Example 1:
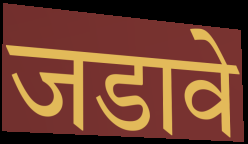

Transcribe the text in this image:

जडावे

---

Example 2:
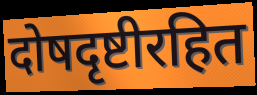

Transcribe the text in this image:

दोषदृष्टीरहित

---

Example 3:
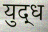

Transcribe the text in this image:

युद्ध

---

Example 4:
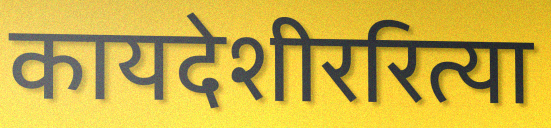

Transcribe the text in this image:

कायदेशीररित्या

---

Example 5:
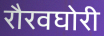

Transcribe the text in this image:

रौरवघोरी